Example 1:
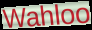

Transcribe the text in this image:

Wahloo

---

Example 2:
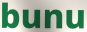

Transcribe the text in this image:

bunu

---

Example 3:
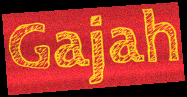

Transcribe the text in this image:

Gajah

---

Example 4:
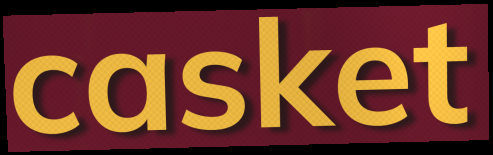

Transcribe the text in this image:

casket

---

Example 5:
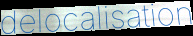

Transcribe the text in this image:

delocalisation